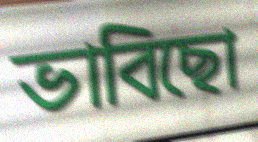
ভাবিছো